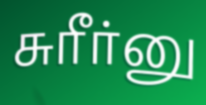
சுரீர்னு